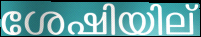
ശേഷിയില്